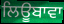
ਲਿਊਬਾਵਾ